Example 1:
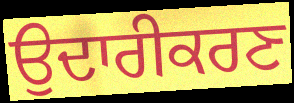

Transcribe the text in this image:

ਉਦਾਰੀਕਰਣ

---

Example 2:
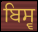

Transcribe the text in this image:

ਬਿਸ੍ਵ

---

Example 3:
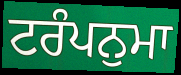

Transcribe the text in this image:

ਟਰੰਪਨੁਮਾ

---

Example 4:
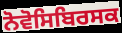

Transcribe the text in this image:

ਨੋਵੋਸਿਬਿਰਸਕ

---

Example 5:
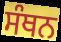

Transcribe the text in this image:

ਸੰਥਨ